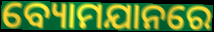
ବ୍ୟୋମଯାନରେ